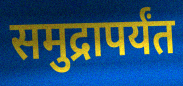
समुद्रापर्यंत